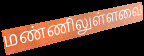
மண்ணிலுள்ளவை